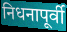
निधनापूर्वी